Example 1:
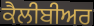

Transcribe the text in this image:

ਕੈਲੀਬੀਅਰ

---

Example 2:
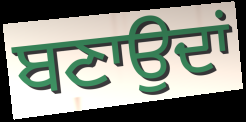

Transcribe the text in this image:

ਬਣਾਉਦਾਂ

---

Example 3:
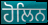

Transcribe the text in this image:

ਹੋਲਿਨ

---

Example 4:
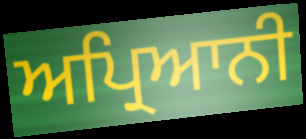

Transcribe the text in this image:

ਅਪ੍ਰਿਆਨੀ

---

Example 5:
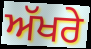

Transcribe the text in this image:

ਅੱਖਰੇ